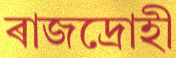
ৰাজদ্ৰোহী